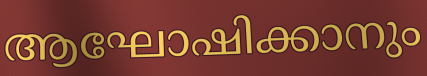
ആഘോഷിക്കാനും